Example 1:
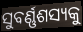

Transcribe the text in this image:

ସୁବର୍ଣ୍ଣଶସ୍ୟକୁ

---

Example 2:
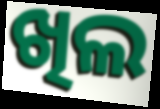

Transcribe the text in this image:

ଖିଲ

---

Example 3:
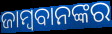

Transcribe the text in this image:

ଜାମ୍ବବାନଙ୍କର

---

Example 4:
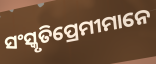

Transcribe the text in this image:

ସଂସ୍କୃତିପ୍ରେମୀମାନେ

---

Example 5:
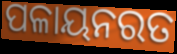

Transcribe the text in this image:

ପଳାୟନରତ